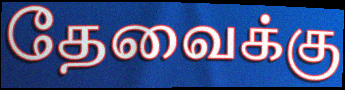
தேவைக்கு